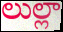
లుల్లా